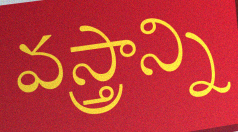
వస్త్రాన్ని